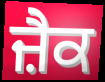
ਜ਼ੈਕ